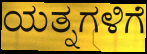
ಯತ್ನಗಳಿಗೆ